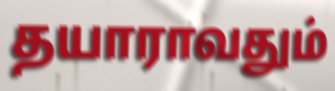
தயாராவதும்